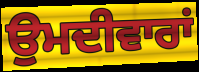
ਉਮਦੀਵਾਰਾਂ